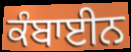
ਕੰਬਾਈਨ